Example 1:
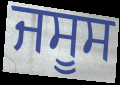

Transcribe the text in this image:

ਜਸੂਸ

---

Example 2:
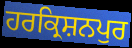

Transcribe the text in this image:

ਹਰਕ੍ਰਿਸ਼ਨਪੁਰ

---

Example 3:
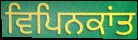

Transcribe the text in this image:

ਵਿਪਿਨਕਾਂਤ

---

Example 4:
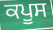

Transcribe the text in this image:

ਕਪੂਸ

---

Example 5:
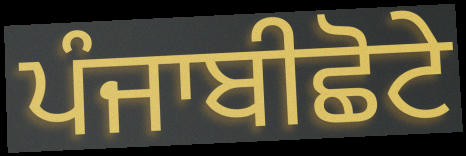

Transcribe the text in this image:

ਪੰਜਾਬੀਛੋਟੇ